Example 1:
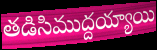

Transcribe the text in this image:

తడిసిముద్దయ్యాయి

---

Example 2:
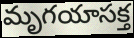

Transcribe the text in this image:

మృగయాసక్త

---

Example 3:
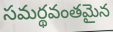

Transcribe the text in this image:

సమర్థవంతమైన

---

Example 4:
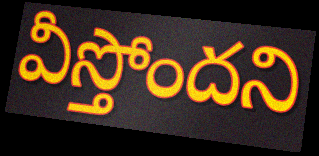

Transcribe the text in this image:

వీస్తోందని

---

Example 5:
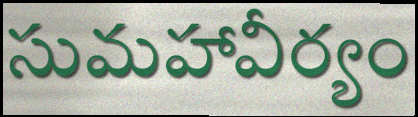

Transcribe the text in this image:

సుమహావీర్యం